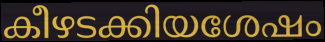
കീഴടക്കിയശേഷം